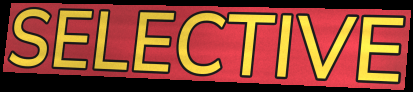
SELECTIVE